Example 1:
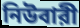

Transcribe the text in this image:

নিউবারী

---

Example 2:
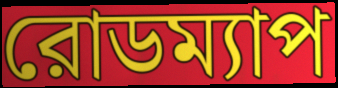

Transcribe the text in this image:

রোডম্যাপ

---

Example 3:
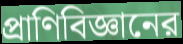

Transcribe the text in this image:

প্রাণিবিজ্ঞানের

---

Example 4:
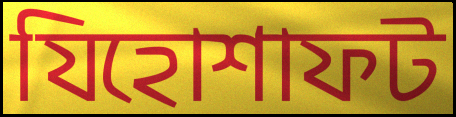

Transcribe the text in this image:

যিহোশাফট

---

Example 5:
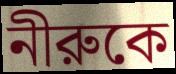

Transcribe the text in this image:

নীরুকে